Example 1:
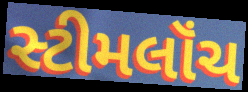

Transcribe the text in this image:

સ્ટીમલૉંચ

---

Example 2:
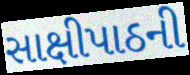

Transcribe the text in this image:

સાક્ષીપાઠની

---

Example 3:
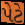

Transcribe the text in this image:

પેટે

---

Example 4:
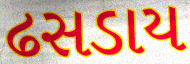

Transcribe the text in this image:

ઢસડાય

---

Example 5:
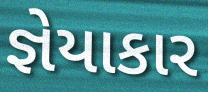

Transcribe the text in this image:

જ્ઞેયાકાર